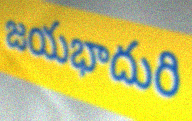
జయభాదురి